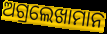
ଅଗ୍ରଲେଖାମାନ